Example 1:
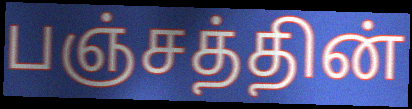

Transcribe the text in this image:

பஞ்சத்தின்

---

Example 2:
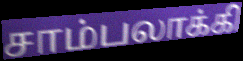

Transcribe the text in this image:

சாம்பலாக்கி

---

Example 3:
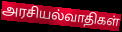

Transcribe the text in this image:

அரசியல்வாதிகள்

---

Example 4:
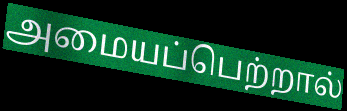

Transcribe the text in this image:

அமையப்பெற்றால்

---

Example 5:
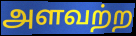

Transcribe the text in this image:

அளவற்ற